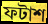
ফটাশ